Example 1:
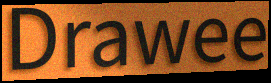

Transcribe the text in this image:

Drawee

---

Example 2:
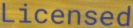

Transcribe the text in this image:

Licensed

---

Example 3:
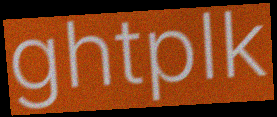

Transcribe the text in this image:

ghtplk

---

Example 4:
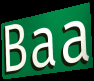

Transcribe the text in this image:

Baa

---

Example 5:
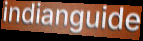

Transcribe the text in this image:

indianguide